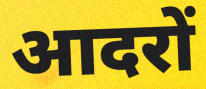
आदरों